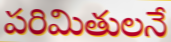
పరిమితులనే